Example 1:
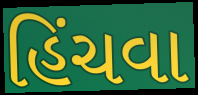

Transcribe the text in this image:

હિંચવા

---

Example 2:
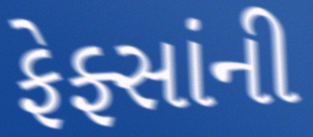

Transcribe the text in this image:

ફેફ્સાંની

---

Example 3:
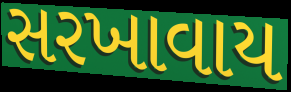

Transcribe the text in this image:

સરખાવાય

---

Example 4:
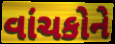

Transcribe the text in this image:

વાંચકોને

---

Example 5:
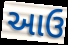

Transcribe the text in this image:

આઉ